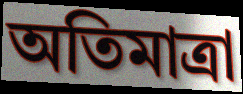
অতিমাত্ৰা